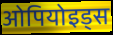
ओपियोइड्स